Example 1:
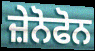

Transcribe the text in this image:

ਜ਼ੇਨੋਫੋਨ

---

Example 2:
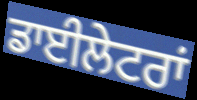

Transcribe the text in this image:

ਡਾਈਲੇਟਰਾਂ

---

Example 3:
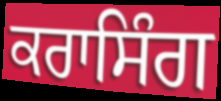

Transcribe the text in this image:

ਕਰਾਸਿੰਗ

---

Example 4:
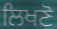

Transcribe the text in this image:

ਲਿਖਣੋ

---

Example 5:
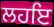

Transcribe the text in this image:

ਲਹਇ